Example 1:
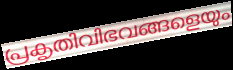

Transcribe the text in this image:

പ്രകൃതിവിഭവങ്ങളെയും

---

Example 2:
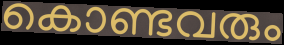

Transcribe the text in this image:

കൊണ്ടവരും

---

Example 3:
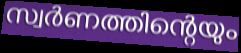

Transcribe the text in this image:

സ്വർണത്തിന്റെയും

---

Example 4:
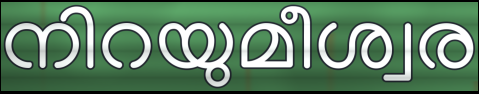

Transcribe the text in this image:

നിറയുമീശ്വര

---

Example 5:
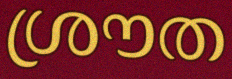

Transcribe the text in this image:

ശ്രൗത